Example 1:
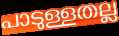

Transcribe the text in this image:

പാടുള്ളതല്ല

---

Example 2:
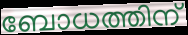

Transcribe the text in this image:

ബോധത്തിന്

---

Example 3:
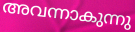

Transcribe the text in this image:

അവന്നാകുന്നു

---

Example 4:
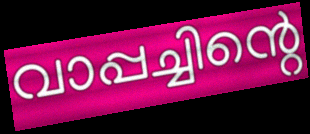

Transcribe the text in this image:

വാപ്പച്ചിന്റെ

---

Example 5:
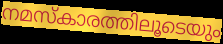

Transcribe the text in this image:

നമസ്കാരത്തിലൂടെയും